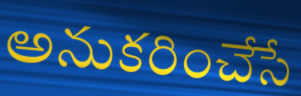
అనుకరించేసే